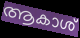
ആകാശ്